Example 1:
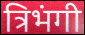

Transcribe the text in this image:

त्रिभंगी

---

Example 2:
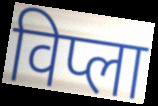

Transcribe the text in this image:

विप्ला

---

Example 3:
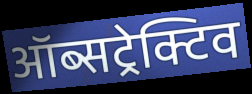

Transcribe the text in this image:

ऑब्सट्रेक्टिव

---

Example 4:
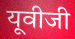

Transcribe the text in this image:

यूवीजी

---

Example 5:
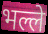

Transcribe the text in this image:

भल्ले